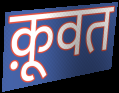
क़ूवत